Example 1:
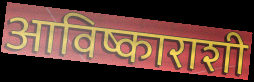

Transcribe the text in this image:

आविष्काराशी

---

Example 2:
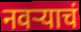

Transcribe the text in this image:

नवर्‍याचं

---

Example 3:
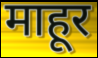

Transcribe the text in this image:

माहूर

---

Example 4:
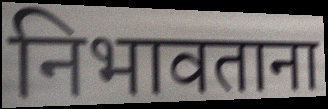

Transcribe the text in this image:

निभावताना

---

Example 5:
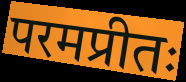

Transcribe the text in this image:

परमप्रीतः